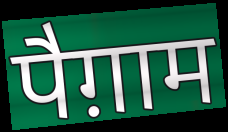
पैग़ाम